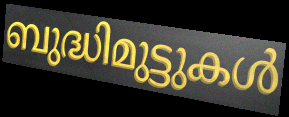
ബുദ്ധിമുട്ടുകൾ